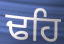
ਢਹਿ